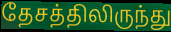
தேசத்திலிருந்து